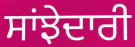
ਸਾਂਝੇਦਾਰੀ